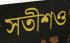
সতীশও